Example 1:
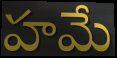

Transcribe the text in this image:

హమే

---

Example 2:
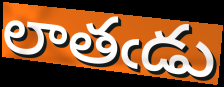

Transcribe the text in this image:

లాతఁడు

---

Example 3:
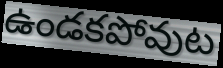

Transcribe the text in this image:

ఉండకపోవుట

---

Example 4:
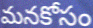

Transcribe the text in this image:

మనకోసం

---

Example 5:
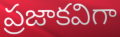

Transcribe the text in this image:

ప్రజాకవిగా